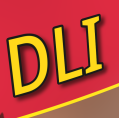
DLI